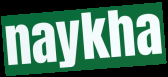
naykha